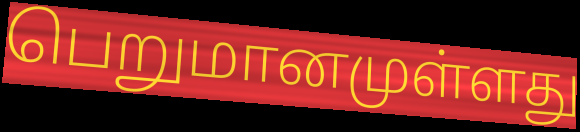
பெறுமானமுள்ளது